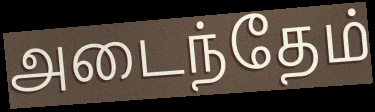
அடைந்தேம்